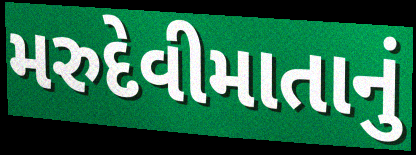
મરુદેવીમાતાનું